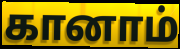
கானாம்